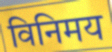
विनिमय